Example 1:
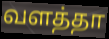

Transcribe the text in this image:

வளத்தா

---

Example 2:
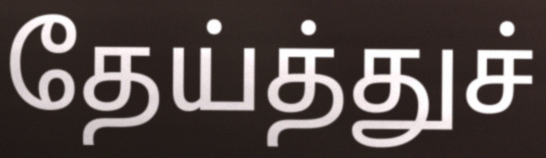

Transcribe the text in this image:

தேய்த்துச்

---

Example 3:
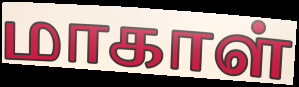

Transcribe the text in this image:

மாகாள்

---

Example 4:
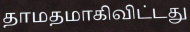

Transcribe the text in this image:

தாமதமாகிவிட்டது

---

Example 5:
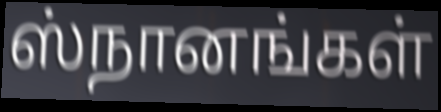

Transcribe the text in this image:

ஸ்நானங்கள்